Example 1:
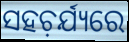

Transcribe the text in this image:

ସହଚ଼ର୍ଯ୍ୟରେ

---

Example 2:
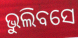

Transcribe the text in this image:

ଭୁଲିବସେ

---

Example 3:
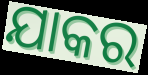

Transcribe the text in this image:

ଯାକର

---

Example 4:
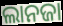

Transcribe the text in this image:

ଲାନଜା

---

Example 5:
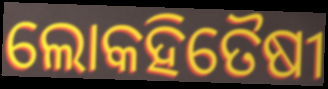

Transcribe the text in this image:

ଲୋକହିତୈଷୀ